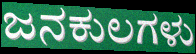
ಜನಕುಲಗಳು